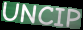
UNCIP